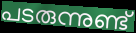
പടരുന്നുണ്ട്